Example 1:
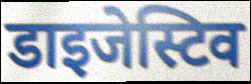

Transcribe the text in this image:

डाइजेस्टिव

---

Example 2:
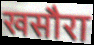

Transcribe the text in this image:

खसौरा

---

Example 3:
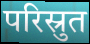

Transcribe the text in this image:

परिस्रुत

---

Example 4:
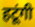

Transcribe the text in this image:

हटूंगी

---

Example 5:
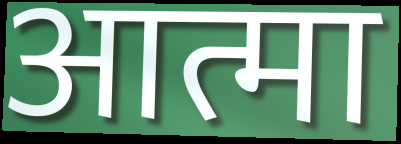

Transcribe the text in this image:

आत्‍मा